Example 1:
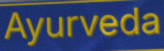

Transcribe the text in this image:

Ayurveda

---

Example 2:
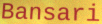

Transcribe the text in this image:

Bansari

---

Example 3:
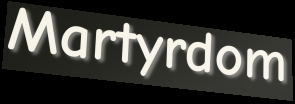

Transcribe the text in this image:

Martyrdom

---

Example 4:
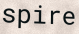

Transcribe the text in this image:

spire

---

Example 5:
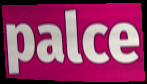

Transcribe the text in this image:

palce